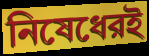
নিষেধেরই